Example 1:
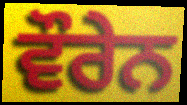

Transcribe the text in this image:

ਵੌਰੇਨ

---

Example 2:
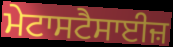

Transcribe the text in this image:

ਮੇਟਾਸਟੈਸਾਈਜ਼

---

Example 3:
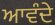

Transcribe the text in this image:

ਆਵੰਦੇ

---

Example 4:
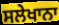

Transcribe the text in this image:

ਸਲੇਖਾਨਾ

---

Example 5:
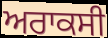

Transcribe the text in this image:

ਅਰਾਕਸੀ